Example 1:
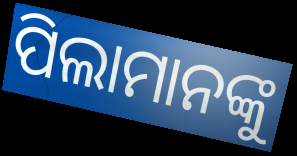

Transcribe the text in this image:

ପିଲାମାନଙ୍କୁ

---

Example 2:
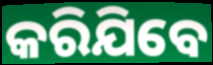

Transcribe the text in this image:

କରିଯିବେ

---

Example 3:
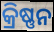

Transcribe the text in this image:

କ୍ରିଷ୍ଣନ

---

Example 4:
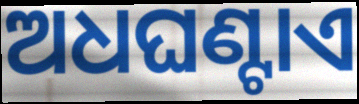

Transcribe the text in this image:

ଅଧଘଣ୍ଟାଏ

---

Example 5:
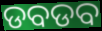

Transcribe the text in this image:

ଡବଡବ